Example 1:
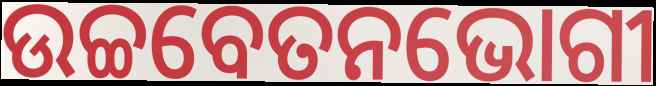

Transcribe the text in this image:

ଉଚ୍ଚବେତନଭୋଗୀ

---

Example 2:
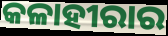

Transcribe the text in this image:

କଳାହୀରାର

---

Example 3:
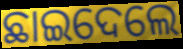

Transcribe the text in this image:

ଛାଇଦେଲେ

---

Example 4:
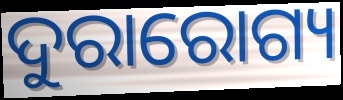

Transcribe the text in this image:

ଦୁରାରୋଗ୍ୟ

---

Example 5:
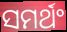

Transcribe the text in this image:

ସମର୍ଥଂ